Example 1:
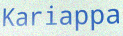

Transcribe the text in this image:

Kariappa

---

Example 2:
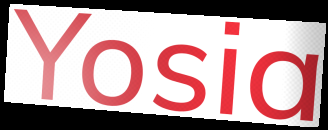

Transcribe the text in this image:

Yosia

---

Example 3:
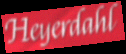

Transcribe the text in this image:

Heyerdahl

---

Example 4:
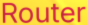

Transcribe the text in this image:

Router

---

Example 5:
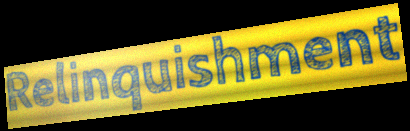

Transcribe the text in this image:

Relinquishment